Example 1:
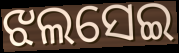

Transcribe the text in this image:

ଝଲସେଇ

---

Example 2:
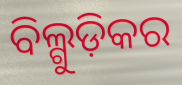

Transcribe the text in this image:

ବିଲ୍ଗୁଡ଼ିକର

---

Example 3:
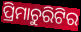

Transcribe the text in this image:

ପ୍ରିମାଚୁରିଟିର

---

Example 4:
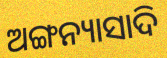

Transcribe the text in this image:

ଅଙ୍ଗନ୍ୟାସାଦି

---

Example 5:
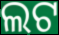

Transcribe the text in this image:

ଲଟ